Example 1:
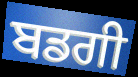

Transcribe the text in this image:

ਬਡਗੀ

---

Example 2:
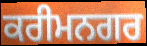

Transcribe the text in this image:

ਕਰੀਮਨਗਰ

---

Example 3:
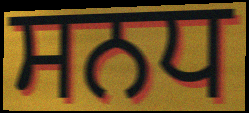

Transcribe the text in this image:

ਸਨਧ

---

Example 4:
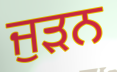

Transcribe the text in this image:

ਜੁਡ਼ਨ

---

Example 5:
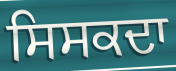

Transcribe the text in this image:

ਸਿਸਕਦਾ